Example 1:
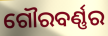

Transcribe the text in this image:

ଗୌରବର୍ଣ୍ଣର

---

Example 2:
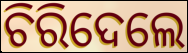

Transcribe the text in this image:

ଚିରିଦେଲେ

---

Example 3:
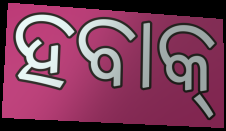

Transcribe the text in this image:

ହବାକ୍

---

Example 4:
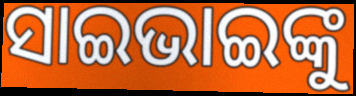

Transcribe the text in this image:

ସାଇଭାଇଙ୍କୁ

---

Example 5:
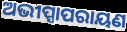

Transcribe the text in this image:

ଅଭୀପ୍ସାପରାୟଣ